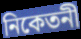
নিকেতনী